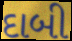
દાબી